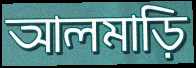
আলমাড়ি